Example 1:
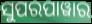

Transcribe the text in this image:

ସୁପରପାୱାର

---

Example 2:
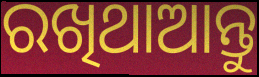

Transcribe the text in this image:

ରଖିଥାଆନ୍ତୁ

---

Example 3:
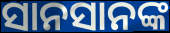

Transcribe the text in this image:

ସାନସାନଙ୍କ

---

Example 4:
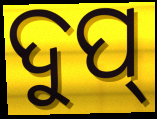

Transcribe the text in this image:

ଦୁପ୍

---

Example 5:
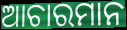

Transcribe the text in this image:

ଆଚାରମାନ